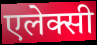
एलेक्सी